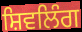
ਸ਼ਿਵਲਿੰਗ